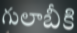
గులాబీకి